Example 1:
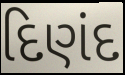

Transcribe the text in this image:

દિણંદ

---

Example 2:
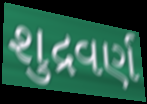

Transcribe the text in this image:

શુદ્રવર્ણ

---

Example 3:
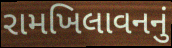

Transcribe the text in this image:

રામખિલાવનનું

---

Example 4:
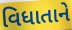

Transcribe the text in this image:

વિધાતાને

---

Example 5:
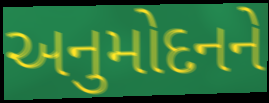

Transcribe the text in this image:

અનુમોદનને